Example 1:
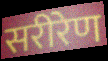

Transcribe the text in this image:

सरीरेण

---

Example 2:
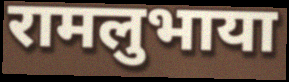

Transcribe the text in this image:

रामलुभाया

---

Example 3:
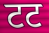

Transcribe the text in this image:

टट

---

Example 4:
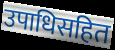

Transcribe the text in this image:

उपाधिसहित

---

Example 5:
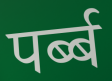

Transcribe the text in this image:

पर्ब्ब